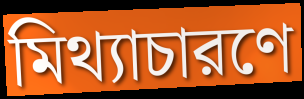
মিথ্যাচারণে